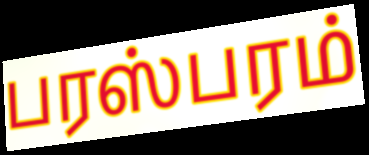
பரஸ்பரம்